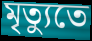
মৃত্যুতে